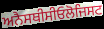
ਅਨੈਸਥੀਸੀਓਲੋਜਿਸਟ